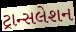
ટ્રાન્સલેશન